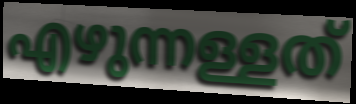
എഴുന്നള്ളത്